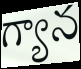
గ్యాన